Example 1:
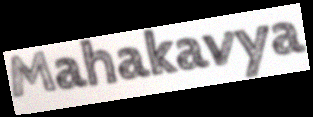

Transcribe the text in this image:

Mahakavya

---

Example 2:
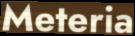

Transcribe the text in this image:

Meteria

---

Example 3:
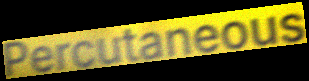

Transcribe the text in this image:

Percutaneous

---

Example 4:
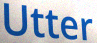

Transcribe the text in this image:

Utter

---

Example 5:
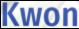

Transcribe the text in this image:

Kwon